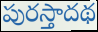
పురస్తాదథ